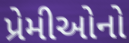
પ્રેમીઓનો